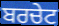
ਬਰਚੇਟ